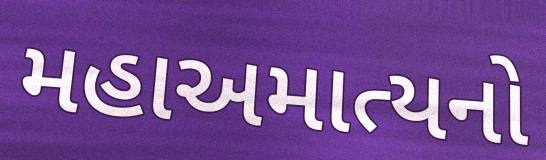
મહાઅમાત્યનો